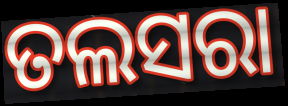
ତଲସରା